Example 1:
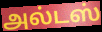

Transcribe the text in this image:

அல்டஸ்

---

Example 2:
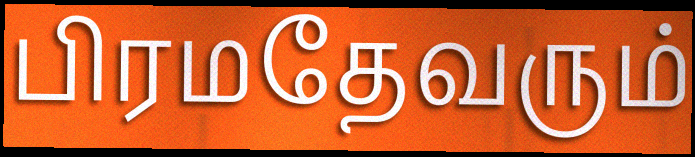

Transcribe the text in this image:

பிரமதேவரும்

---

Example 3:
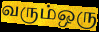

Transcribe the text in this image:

வரும்ஒரு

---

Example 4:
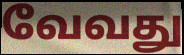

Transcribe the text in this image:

வேவது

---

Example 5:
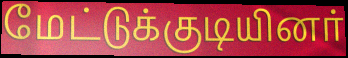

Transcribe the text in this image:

மேட்டுக்குடியினர்